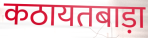
कठायतबाड़ा